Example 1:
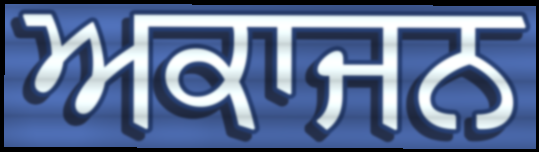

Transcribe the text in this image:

ਅਕਾਜਨ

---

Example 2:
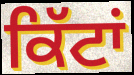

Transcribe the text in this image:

ਕਿੱਟਾਂ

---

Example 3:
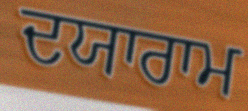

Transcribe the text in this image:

ਦਯਾਰਾਮ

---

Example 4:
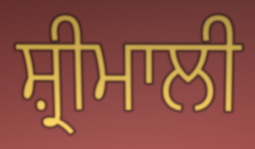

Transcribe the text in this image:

ਸ਼੍ਰੀਮਾਲੀ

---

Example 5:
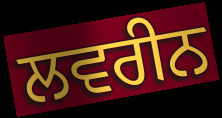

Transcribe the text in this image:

ਲਵਰੀਨ